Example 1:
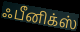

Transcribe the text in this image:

ஃபீனிக்ஸ்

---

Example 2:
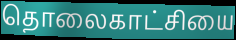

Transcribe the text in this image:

தொலைகாட்சியை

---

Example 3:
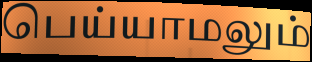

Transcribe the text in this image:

பெய்யாமலும்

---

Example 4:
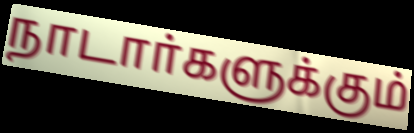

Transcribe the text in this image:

நாடார்களுக்கும்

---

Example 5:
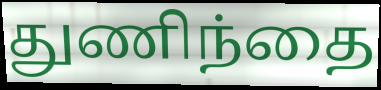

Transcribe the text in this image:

துணிந்தை